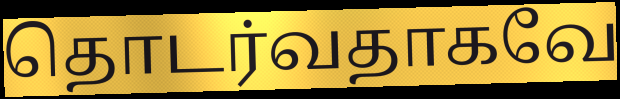
தொடர்வதாகவே